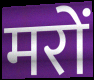
मरों